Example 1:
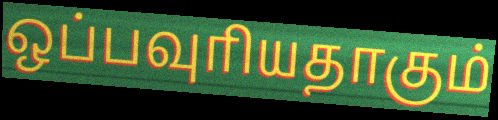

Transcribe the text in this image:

ஒப்பவுரியதாகும்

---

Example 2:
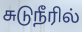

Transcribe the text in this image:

சுடுநீரில்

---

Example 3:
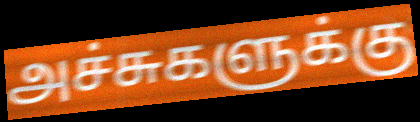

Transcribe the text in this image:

அச்சுகளுக்கு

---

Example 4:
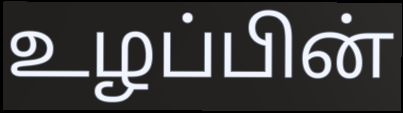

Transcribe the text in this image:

உழப்பின்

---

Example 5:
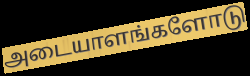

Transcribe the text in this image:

அடையாளங்களோடு